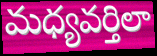
మధ్యవర్తిలా